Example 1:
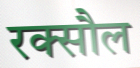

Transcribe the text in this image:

रक्‍सौल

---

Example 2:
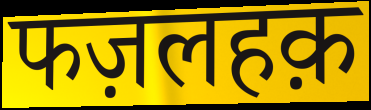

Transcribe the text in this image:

फज़लहक़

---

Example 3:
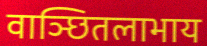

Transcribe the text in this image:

वाञ्छितलाभाय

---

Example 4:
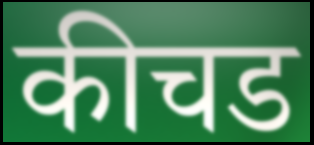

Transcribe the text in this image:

कीचड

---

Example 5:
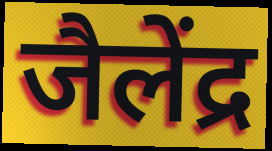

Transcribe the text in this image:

जैलेंद्र